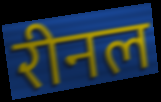
रीनल